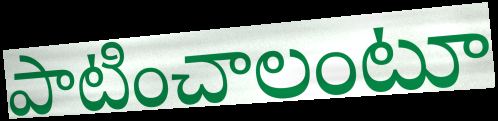
పాటించాలంటూ